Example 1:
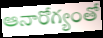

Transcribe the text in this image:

ఆనారోగ్యంతో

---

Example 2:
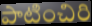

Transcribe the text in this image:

పాటించిరి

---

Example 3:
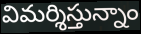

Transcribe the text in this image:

విమర్శిస్తున్నాం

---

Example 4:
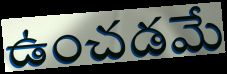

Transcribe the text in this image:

ఉంచడమే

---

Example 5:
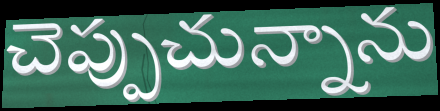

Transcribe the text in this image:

చెప్పుచున్నాను